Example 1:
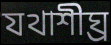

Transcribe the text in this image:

যথাশীঘ্র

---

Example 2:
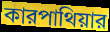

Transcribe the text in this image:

কারপাথিয়ার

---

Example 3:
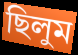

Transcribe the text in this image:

ছিলুম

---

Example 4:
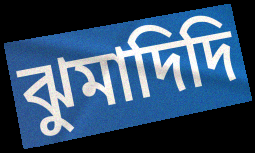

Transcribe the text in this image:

ঝুমাদিদি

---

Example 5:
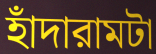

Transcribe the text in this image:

হাঁদারামটা